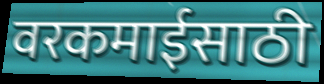
वरकमाईसाठी